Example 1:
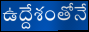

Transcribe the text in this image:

ఉద్దేశంతోనే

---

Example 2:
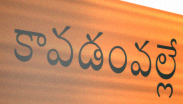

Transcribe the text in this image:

కావడంవల్లే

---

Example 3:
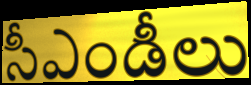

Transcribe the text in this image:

సీఎండీలు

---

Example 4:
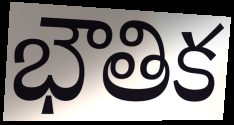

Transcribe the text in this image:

భౌతిక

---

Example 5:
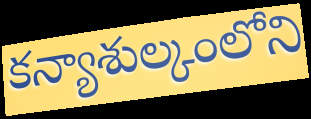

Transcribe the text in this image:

కన్యాశుల్కంలోని